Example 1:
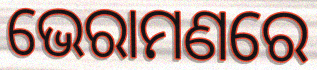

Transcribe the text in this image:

ଭେରାମଣରେ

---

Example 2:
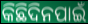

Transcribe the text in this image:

କିଛିଦିନପାଇଁ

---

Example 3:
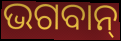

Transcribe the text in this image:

ଭଗବାନ୍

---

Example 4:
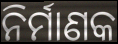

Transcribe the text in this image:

ନିର୍ମାଣକ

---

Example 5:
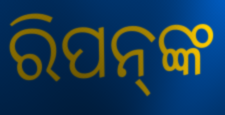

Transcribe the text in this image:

ରିପନ୍‍ଙ୍କ